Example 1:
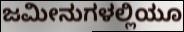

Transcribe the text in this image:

ಜಮೀನುಗಳಲ್ಲಿಯೂ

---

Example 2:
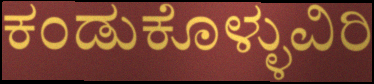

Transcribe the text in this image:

ಕಂಡುಕೊಳ್ಳುವಿರಿ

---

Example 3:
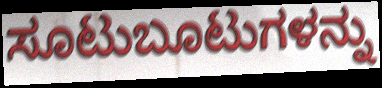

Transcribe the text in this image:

ಸೂಟುಬೂಟುಗಳನ್ನು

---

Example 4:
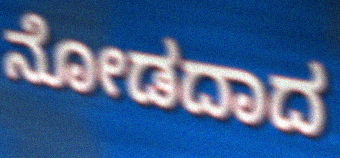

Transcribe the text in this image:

ನೋಡದಾದ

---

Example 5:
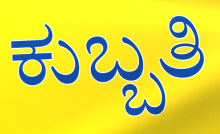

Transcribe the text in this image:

ಕುಬ್ಬತಿ